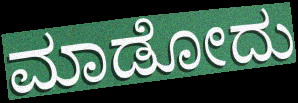
ಮಾಡೋದು